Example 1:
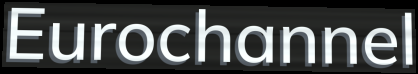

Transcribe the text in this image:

Eurochannel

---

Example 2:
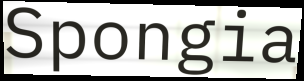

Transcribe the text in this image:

Spongia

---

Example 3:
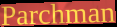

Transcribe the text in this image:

Parchman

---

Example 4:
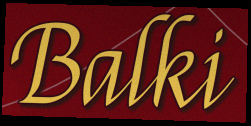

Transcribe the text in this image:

Balki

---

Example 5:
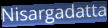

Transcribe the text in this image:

Nisargadatta